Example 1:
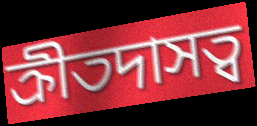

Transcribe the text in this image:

ক্রীতদাসত্ব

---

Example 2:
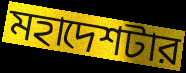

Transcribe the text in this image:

মহাদেশটার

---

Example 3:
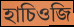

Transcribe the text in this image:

হাচিওজি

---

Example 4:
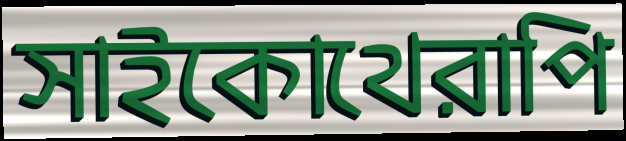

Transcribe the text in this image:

সাইকোথেরাপি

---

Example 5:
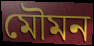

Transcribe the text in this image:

মৌমন